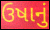
ઉષાનું